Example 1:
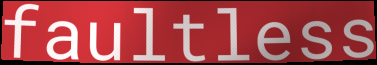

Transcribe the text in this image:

faultless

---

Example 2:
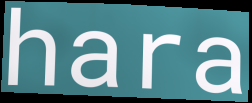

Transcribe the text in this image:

hara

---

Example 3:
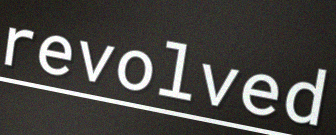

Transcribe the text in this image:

revolved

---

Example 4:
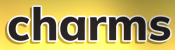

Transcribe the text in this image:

charms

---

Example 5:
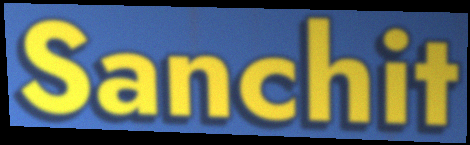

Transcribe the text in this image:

Sanchit